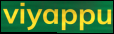
viyappu